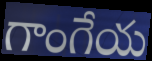
గాంగేయ